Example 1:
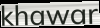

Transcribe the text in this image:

khawar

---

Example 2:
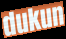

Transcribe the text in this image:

dukun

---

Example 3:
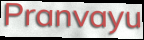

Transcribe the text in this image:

Pranvayu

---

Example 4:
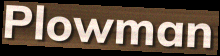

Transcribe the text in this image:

Plowman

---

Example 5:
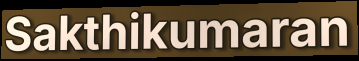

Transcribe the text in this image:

Sakthikumaran